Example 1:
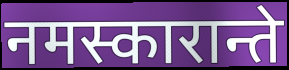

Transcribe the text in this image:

नमस्कारान्ते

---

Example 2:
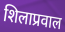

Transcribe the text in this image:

शिलाप्रवाल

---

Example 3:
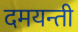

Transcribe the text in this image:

दमयन्ती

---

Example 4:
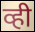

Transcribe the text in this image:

व्‍ही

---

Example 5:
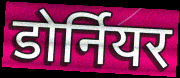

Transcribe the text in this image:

डोर्नियर